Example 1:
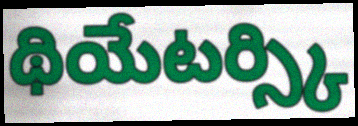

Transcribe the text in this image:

థియేటర్స్కి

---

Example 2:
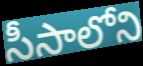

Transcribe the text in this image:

సీసాలోని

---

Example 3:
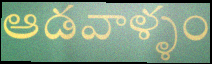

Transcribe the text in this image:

ఆడవాళ్ళం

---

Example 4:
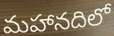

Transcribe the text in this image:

మహానదిలో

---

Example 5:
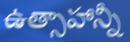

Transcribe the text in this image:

ఉత్సాహాన్నీ